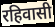
रहिवासी